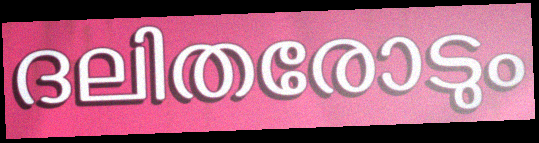
ദലിതരോടും